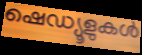
ഷെഡ്യൂളുകൾ